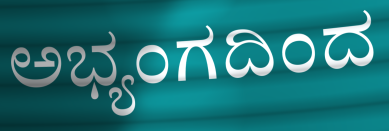
ಅಭ್ಯಂಗದಿಂದ